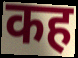
कह